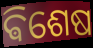
ଵିଶେଷ